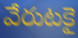
వేరుటకై